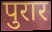
पुरार